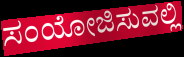
ಸಂಯೋಜಿಸುವಲ್ಲಿ